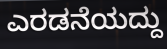
ಎರಡನೆಯದ್ದು